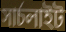
সার্চলাইট